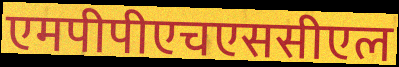
एमपीपीएचएससीएल